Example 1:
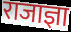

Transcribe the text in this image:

राजाज्ञा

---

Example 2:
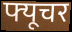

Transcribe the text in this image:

फ्यूचर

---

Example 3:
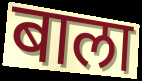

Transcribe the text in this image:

बाला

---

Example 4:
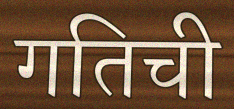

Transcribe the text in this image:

गतिची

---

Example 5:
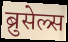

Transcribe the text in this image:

ब्रुसेल्स